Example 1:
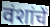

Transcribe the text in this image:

वंशांचें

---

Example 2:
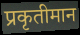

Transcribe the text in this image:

प्रकृतीमान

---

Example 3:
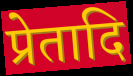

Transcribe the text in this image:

प्रेतादि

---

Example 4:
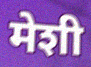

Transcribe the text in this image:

मेशी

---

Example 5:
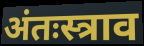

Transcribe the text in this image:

अंतःस्त्राव